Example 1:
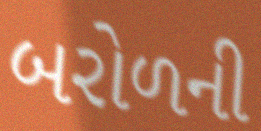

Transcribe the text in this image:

બરોળની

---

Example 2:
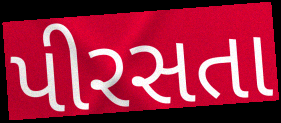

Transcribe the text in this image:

પીરસતા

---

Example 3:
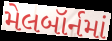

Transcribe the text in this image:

મેલબૉર્નમાં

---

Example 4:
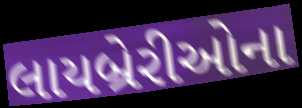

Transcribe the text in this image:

લાયબ્રેરીઓના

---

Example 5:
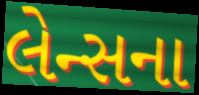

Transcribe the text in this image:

લેન્સના